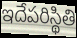
ఇదేపరిస్థితి